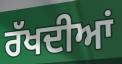
ਰੱਖਦੀਆਂ